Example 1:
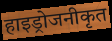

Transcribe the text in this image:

हाइड्रोजनीकृत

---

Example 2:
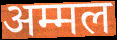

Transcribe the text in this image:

अम्मल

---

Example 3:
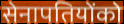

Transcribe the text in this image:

सेनापतियोंको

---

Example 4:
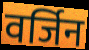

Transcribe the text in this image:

वर्जिन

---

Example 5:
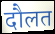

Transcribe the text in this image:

दौलत